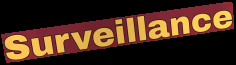
Surveillance